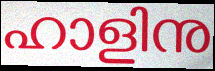
ഹാളിനു